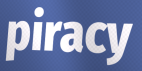
piracy